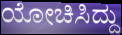
ಯೋಚಿಸಿದ್ದು